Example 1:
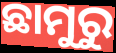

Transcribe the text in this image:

ଛାମୁରୁ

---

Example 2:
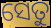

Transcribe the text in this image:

ସେତୁ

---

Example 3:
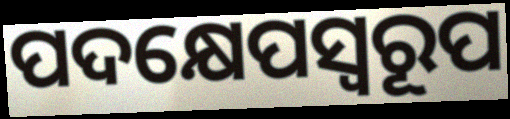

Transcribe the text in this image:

ପଦକ୍ଷେପସ୍ୱରୂପ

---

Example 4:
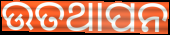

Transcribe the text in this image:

ଉତଥାପନ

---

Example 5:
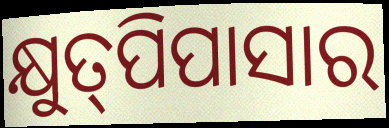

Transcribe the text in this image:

କ୍ଷୁତ୍‍ପିପାସାର